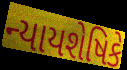
ન્યાયશેષિકે